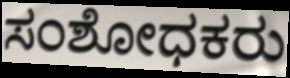
ಸಂಶೋಧಕರು